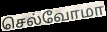
செல்வோமா